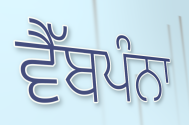
ਵੈੱਬਪੰਨਾ